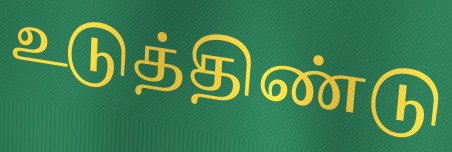
உடுத்திண்டு